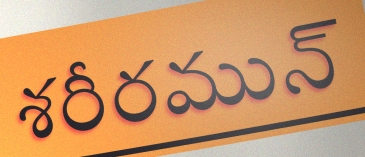
శరీరమున్